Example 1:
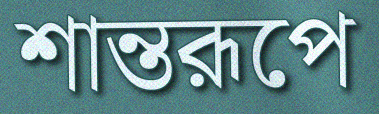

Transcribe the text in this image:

শান্তরূপে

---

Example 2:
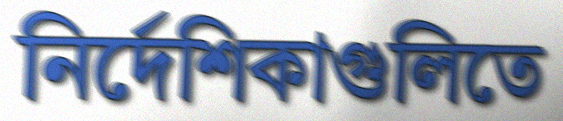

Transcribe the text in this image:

নির্দেশিকাগুলিতে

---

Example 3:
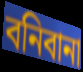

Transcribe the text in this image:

বনিবানা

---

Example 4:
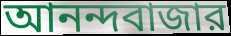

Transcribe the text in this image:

আনন্দবাজার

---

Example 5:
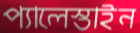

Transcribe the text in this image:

প্যালেস্তাইন